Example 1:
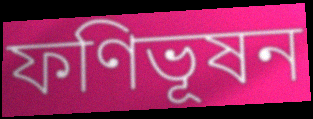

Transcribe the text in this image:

ফণিভূষন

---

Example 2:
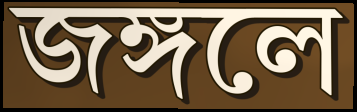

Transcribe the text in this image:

জঙ্গলে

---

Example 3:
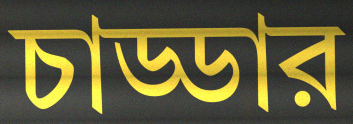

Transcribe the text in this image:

চাড্ডার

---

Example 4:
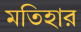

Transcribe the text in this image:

মতিহার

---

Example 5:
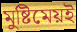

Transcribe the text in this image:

মুষ্টিমেয়ই